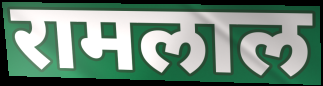
रामलाल